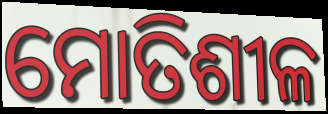
ମୋତିଶୀଳ